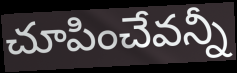
చూపించేవన్నీ